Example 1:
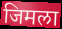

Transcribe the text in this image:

जिमला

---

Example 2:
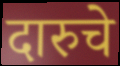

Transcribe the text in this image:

दारुचे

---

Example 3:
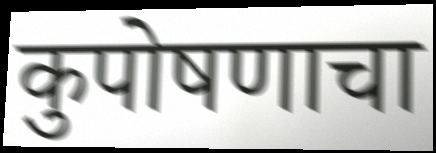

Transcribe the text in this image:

कुपोषणाचा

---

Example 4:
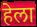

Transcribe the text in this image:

हेला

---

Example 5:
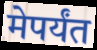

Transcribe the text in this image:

मेपर्यंत